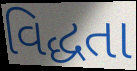
વિદ્ધતા